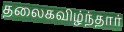
தலைகவிழ்ந்தார்